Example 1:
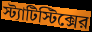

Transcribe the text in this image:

স্ট্যাটিস্টিক্সের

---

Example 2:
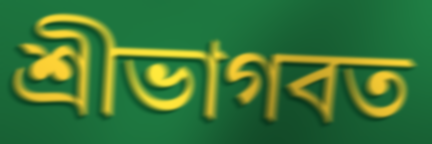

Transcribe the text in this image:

শ্রীভাগবত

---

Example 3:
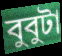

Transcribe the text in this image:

বুবুটা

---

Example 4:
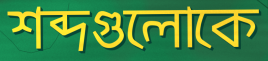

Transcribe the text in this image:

শব্দগুলোকে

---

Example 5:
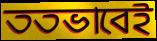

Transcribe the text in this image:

ততভাবেই